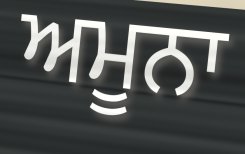
ਅਮੂਨਾ